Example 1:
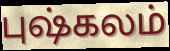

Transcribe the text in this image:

புஷ்கலம்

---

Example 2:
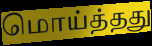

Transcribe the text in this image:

மொய்த்தது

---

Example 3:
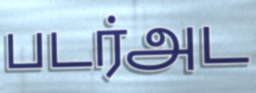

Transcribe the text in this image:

படர்அட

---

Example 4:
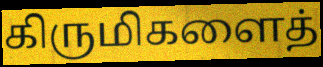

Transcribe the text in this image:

கிருமிகளைத்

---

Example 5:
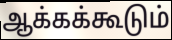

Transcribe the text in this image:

ஆக்கக்கூடும்